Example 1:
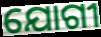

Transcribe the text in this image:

ଯୋଗୀ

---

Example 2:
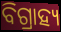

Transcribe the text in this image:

ବିଗ୍ରାହ୍ୟ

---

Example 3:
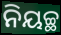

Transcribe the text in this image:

ନିୟଚ୍ଛ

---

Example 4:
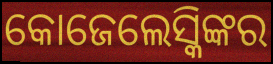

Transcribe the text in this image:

କୋଜେଲେସ୍କିଙ୍କର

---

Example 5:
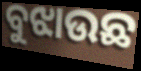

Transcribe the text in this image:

ବୁଝାଉଛ